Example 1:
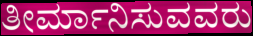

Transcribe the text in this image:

ತೀರ್ಮಾನಿಸುವವರು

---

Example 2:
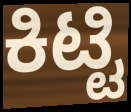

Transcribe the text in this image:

ಕಿಟ್ಟಿ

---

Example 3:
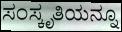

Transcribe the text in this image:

ಸಂಸ್ಕೃತಿಯನ್ನೂ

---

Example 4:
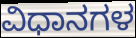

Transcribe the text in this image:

ವಿಧಾನಗಳ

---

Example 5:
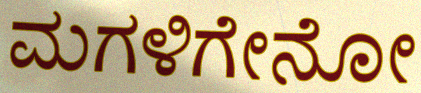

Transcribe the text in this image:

ಮಗಳಿಗೇನೋ